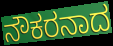
ನೌಕರನಾದ